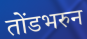
तोंडभरुन